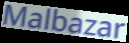
Malbazar